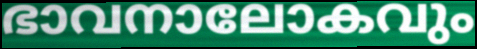
ഭാവനാലോകവും